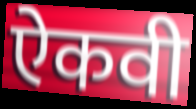
ऐकवी